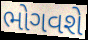
ભોગવશે